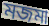
মজমা